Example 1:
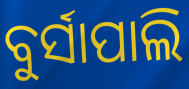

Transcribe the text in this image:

ବୁର୍ସାପାଲି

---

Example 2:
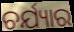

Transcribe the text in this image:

ଚର୍ଯ୍ୟାର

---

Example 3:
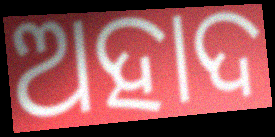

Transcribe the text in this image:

ଅହାଦ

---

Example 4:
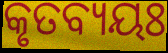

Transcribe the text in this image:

କୃତବ୍ୟୟଃ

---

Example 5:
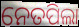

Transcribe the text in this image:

ନେତପିଲା